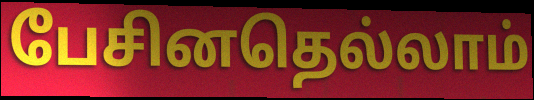
பேசினதெல்லாம்